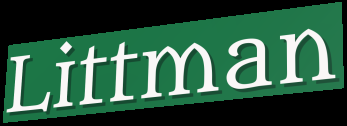
Littman